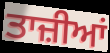
ਤਾਜ਼ੀਆਂ